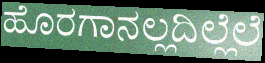
ಹೊರಗಾನಲ್ಲದಿಲ್ಲೆಲೆ